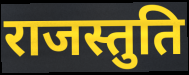
राजस्तुति